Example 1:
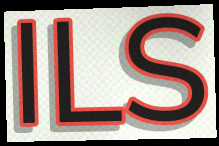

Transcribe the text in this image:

ILS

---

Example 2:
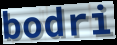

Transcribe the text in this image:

bodri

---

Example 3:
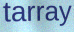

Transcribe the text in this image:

tarray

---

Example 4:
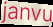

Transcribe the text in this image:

janvu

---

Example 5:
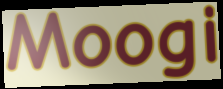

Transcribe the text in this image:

Moogi